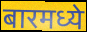
बारमध्ये